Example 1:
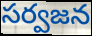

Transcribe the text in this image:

సర్వజన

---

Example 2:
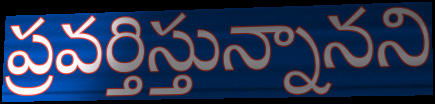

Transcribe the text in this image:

ప్రవర్తిస్తున్నానని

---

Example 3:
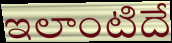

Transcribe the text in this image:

ఇలాంటిదే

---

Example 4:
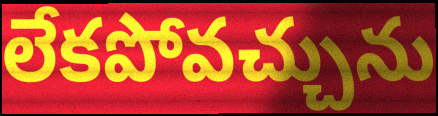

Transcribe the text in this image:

లేకపోవచ్చును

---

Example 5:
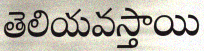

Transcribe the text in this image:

తెలియవస్తాయి